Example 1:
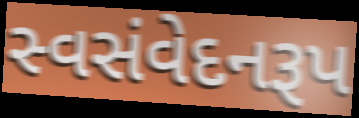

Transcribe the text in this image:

સ્વસંવેદનરૂપ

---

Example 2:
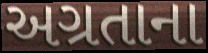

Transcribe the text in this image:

અગ્રતાના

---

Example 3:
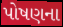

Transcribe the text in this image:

પોષણના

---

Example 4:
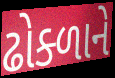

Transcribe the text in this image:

ઢોક્ળાને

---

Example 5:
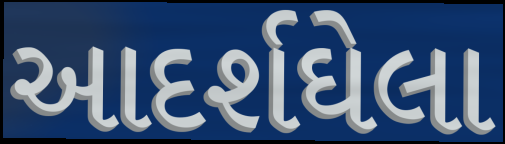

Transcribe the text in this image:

આદર્શઘેલા